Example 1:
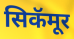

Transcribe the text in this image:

सिकॅमूर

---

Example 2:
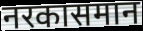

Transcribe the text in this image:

नरकासमान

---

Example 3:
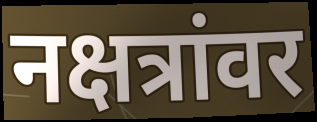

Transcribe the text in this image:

नक्षत्रांवर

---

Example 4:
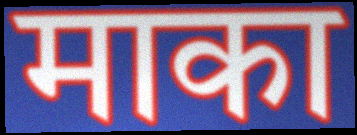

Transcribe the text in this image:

माका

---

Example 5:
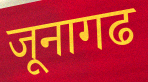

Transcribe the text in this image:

जूनागढ